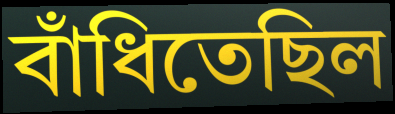
বাঁধিতেছিল